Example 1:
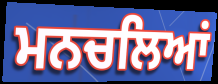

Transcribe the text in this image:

ਮਨਚਲਿਆਂ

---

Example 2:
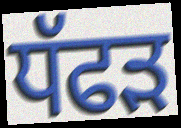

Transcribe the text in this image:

ਧੱਫੜ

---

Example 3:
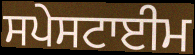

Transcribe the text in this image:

ਸਪੇਸਟਾਈਮ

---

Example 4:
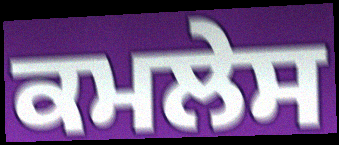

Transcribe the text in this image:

ਕਮਲੇਸ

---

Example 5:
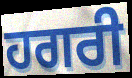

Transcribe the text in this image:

ਹਗਰੀ